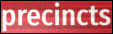
precincts